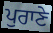
ਪੁਰਾਣੇ